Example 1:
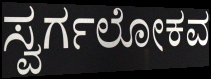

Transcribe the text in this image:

ಸ್ವರ್ಗಲೋಕವ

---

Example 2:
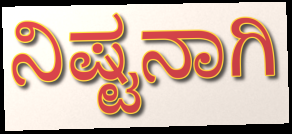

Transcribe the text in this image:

ನಿಷ್ಟನಾಗಿ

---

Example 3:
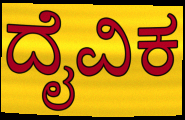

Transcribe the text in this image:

ದೈವಿಕ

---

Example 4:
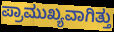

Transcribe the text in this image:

ಪ್ರಾಮುಖ್ಯವಾಗಿತ್ತು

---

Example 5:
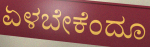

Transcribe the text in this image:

ಏಳಬೇಕೆಂದೂ